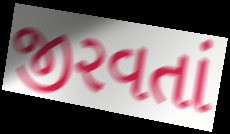
જીરવતાં